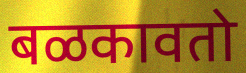
बळकावतो